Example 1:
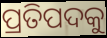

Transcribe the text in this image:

ପ୍ରତିପଦକୁ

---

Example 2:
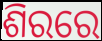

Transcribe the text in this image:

ଶିରରେ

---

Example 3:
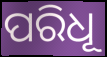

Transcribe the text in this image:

ପରିଧୂ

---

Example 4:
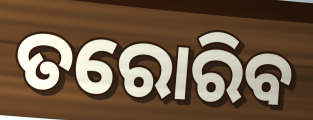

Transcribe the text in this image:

ତରୋରିବ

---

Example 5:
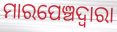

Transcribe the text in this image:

ମାରପେଞ୍ଚଦ୍ବାରା